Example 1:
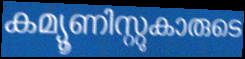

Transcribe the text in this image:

കമ്യൂണിസ്റ്റുകാരുടെ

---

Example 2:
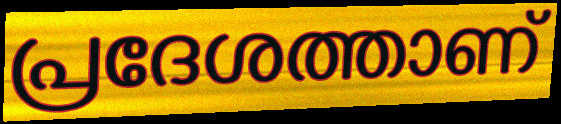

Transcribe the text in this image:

പ്രദേശത്താണ്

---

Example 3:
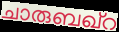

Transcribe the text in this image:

ചാരുബഖ്റ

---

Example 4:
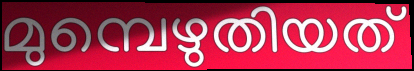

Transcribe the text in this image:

മുമ്പെഴുതിയത്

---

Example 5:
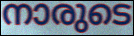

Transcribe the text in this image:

നാരുടെ